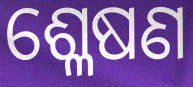
ଶ୍ଳେଷଣ